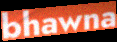
bhawna